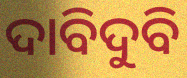
ଦାବିଦୁବି